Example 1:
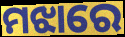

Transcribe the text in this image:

ମଝାରେ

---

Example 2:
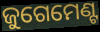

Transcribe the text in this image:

ଜୁଗେମେଣ୍ଟ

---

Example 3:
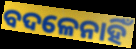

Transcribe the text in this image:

ବଦଳେନାହିଁ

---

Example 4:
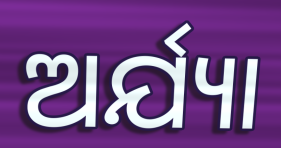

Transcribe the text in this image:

ଅର୍ଯ୍ୟା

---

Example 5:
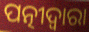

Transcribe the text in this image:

ପତ୍ନୀଦ୍ୱାରା